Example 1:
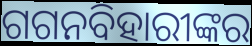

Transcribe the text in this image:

ଗଗନବିହାରୀଙ୍କର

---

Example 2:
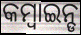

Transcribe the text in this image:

କମ୍ବାଇନ୍ଡ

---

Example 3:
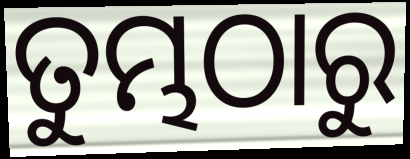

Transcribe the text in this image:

ତୁମ୍ଭଠାରୁ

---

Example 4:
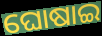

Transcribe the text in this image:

ଘୋଷାଇ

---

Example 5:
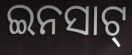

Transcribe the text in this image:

ଇନସାଟ୍